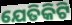
ଯେତିକିଟି